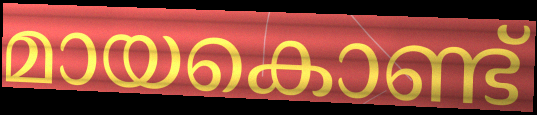
മായകൊണ്ട്